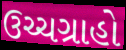
ઉચ્ચગ્રાહો